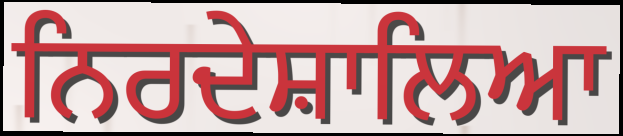
ਨਿਰਦੇਸ਼ਾਲਿਆ